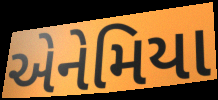
એનેમિયા